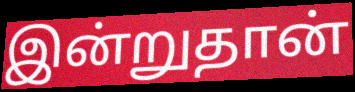
இன்றுதான்